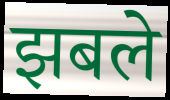
झबले